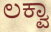
ಲಕ್ವಾ